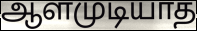
ஆளமுடியாத